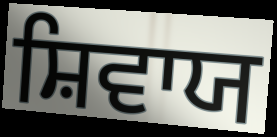
ਸ਼ਿਵਾਯ